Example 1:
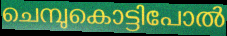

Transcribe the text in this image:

ചെമ്പുകൊട്ടിപോൽ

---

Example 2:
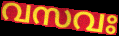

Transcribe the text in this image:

വസവഃ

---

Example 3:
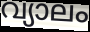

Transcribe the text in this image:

വ്യാലം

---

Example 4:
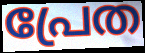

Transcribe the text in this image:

പ്രേത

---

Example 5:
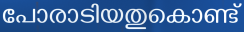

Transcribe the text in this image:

പോരാടിയതുകൊണ്ട്